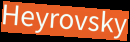
Heyrovsky